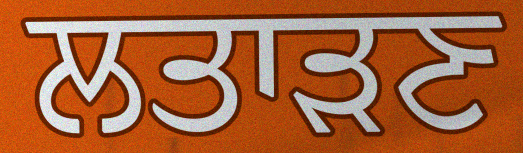
ਲਤਾੜਣ